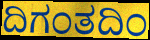
ದಿಗಂತದಿಂ